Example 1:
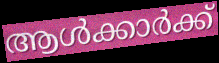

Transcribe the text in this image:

ആൾക്കാർക്ക്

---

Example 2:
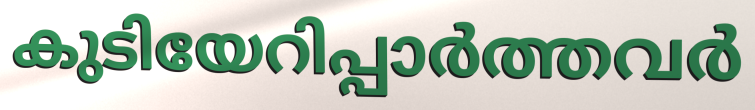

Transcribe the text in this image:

കുടിയേറിപ്പാർത്തവർ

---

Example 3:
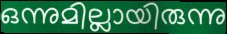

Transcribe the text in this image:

ഒന്നുമില്ലായിരുന്നു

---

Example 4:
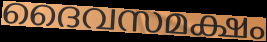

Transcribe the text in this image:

ദൈവസമക്ഷം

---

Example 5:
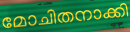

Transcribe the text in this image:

മോചിതനാക്കി